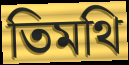
তিমথি